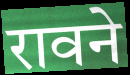
रावने